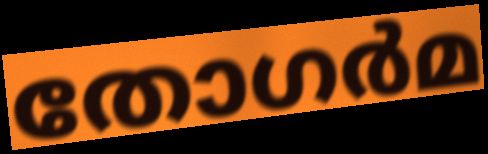
തോഗർമ